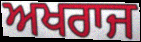
ਅਖਰਾਜ